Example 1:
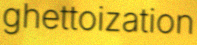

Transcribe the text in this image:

ghettoization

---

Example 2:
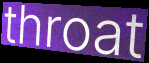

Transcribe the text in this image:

throat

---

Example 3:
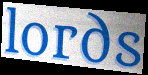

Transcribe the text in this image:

lords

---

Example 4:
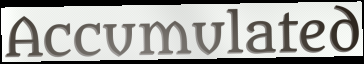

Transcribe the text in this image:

Accumulated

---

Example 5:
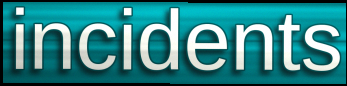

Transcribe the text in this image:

incidents